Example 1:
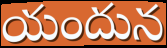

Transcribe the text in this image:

యందున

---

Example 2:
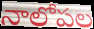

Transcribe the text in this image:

నాలోపల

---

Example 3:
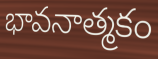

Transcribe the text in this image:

భావనాత్మకం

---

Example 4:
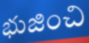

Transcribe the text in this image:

భుజించి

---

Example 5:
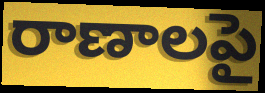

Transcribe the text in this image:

రాణాలపై